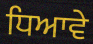
ਧਿਆਵੇ